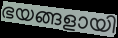
ഭയങ്ങളായി